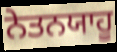
ਨੇਤਨਯਾਹੂ